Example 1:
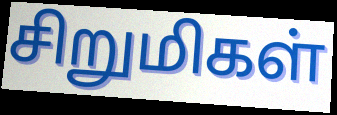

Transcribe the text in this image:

சிறுமிகள்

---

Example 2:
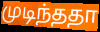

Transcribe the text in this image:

முடிந்ததா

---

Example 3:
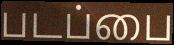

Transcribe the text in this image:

படப்பை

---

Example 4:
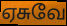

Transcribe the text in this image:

ஏசுவே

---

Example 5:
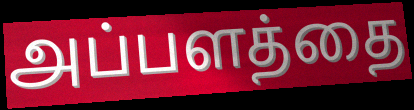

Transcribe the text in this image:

அப்பளத்தை